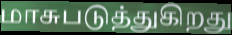
மாசுபடுத்துகிறது